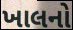
ખાલનો